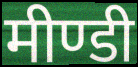
मीण्‍डी